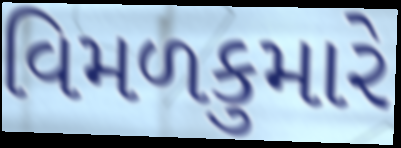
વિમળકુમારે